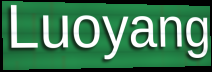
Luoyang